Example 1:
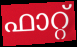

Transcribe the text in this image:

ഫാറ്റ്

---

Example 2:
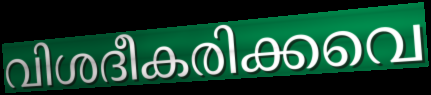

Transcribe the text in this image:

വിശദീകരിക്കവെ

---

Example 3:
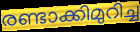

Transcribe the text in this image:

രണ്ടാക്കിമുറിച്ച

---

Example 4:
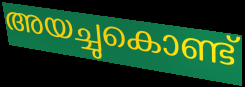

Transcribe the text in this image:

അയച്ചുകൊണ്ട്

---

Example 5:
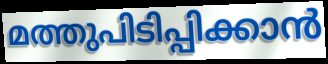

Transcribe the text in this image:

മത്തുപിടിപ്പിക്കാൻ